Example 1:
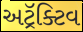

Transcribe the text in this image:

અટ્રૅક્ટિવ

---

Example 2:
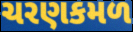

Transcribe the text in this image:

ચરણકમળ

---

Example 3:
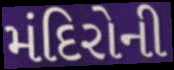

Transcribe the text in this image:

મંદિરોની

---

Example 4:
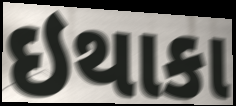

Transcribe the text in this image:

ઇથાકા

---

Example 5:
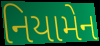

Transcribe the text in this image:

નિયામેન